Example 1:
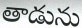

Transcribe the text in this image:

తాడును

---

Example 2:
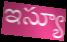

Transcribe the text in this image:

ఇస్యూ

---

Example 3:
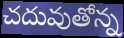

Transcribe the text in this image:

చదువుతోన్న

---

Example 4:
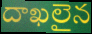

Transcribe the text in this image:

దాఖలైన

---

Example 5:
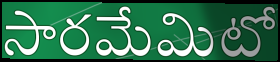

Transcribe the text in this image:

సారమేమిటో